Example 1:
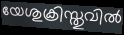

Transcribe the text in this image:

യേശുക്രിസ്തുവിൽ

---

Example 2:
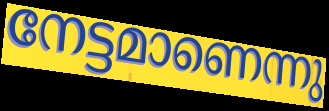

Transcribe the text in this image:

നേട്ടമാണെന്നു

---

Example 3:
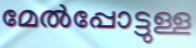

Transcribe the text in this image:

മേൽപ്പോട്ടുള്ള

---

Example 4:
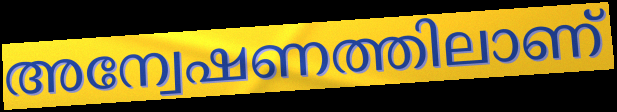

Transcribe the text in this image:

അന്വേഷണത്തിലാണ്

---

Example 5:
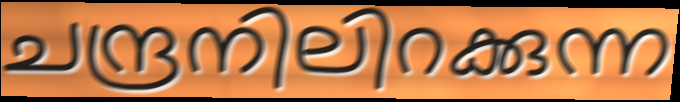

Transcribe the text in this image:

ചന്ദ്രനിലിറക്കുന്ന